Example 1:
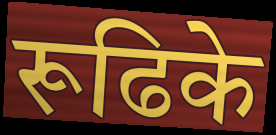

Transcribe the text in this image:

रूढिके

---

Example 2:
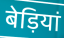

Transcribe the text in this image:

बेड़ियां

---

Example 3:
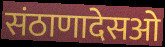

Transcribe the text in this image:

संठाणादेसओ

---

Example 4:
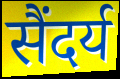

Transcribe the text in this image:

सैंदर्य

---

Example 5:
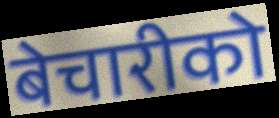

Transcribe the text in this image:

बेचारीको